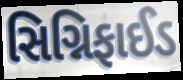
સિગ્નિફાઈડ